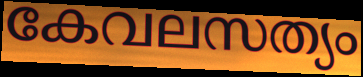
കേവലസത്യം